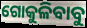
ଗୋକୁଳିବାବୁ